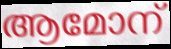
ആമോന്